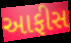
આફીસ